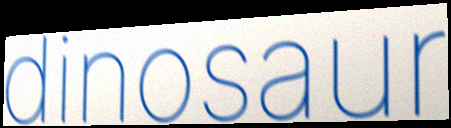
dinosaur